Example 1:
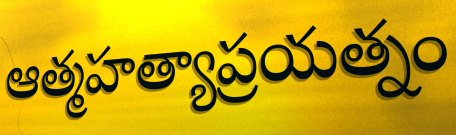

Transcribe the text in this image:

ఆత్మహత్యాప్రయత్నం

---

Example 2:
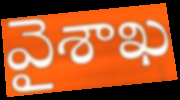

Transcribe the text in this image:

వైశాఖ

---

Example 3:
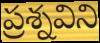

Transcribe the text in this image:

ప్రశ్నవిని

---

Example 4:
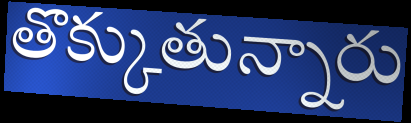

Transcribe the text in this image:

తొక్కుతున్నారు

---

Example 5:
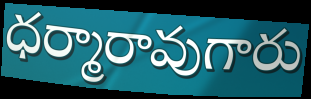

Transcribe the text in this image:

ధర్మారావుగారు